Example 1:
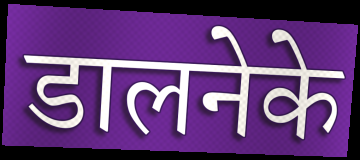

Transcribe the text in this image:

डालनेके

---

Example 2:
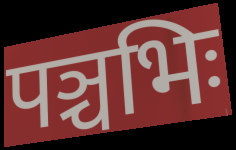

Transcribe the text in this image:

पञ्चभिः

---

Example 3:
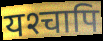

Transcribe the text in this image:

यश्चापि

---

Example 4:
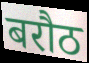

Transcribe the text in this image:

बरौठ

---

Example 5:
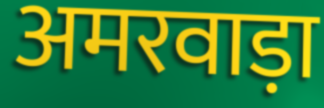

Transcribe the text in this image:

अमरवाड़ा